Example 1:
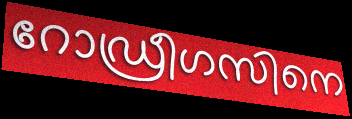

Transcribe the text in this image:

റോഡ്രീഗസിനെ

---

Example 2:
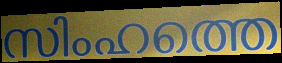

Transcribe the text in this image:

സിംഹത്തെ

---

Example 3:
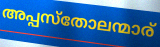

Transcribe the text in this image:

അപ്പസ്തോലന്മാര്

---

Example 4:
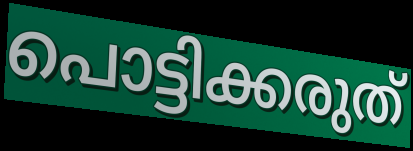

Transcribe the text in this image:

പൊട്ടിക്കരുത്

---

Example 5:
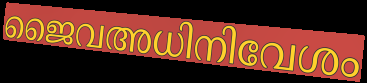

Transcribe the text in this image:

ജൈവഅധിനിവേശം